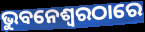
ଭୁବନେଶ୍ଵରଠାରେ